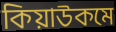
কিয়াউকমে